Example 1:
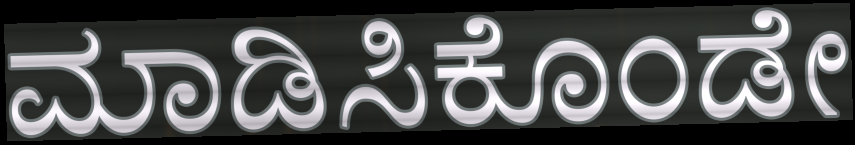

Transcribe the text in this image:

ಮಾಡಿಸಿಕೊಂಡೇ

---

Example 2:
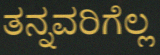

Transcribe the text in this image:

ತನ್ನವರಿಗೆಲ್ಲ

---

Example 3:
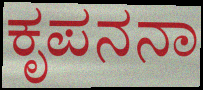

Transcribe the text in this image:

ಕೃಪನನಾ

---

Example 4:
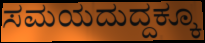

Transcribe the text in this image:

ಸಮಯದುದ್ದಕ್ಕೂ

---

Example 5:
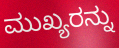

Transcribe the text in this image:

ಮುಖ್ಯರನ್ನು